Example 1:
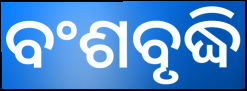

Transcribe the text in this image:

ବଂଶବୃଦ୍ଧି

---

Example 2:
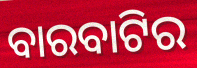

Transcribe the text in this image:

ବାରବାଟିର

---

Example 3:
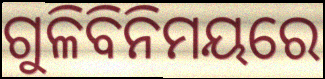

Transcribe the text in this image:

ଗୁଳିବିନିମୟରେ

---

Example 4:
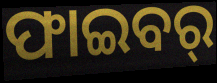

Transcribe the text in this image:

ଫାଇବର୍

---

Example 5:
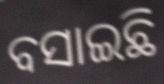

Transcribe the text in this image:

ବସାଇଛି